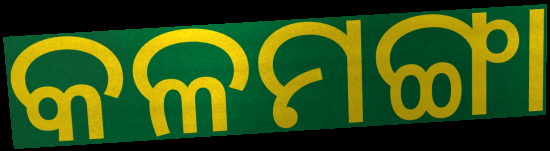
କଳମଙ୍ଗା